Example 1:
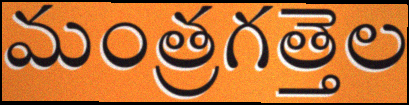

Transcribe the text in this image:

మంత్రగత్తెల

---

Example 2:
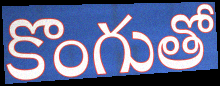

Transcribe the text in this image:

కొంగుతో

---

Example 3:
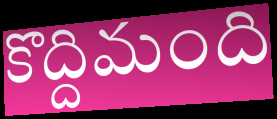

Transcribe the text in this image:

కొద్దిమంది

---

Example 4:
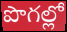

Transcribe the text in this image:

పొగల్లో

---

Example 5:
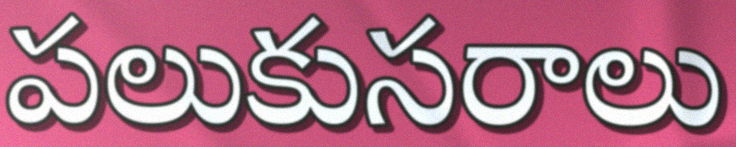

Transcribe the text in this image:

పలుకుసరాలు